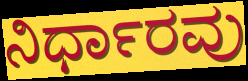
ನಿರ್ಧಾರವು